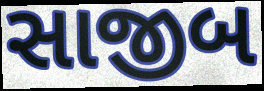
સાજીબ